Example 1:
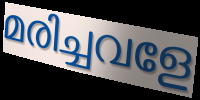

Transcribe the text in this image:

മരിച്ചവളേ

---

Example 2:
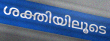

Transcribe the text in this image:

ശക്തിയിലൂടെ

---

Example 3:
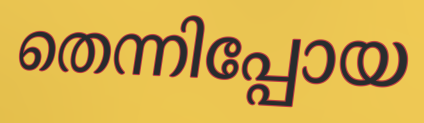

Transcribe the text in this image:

തെന്നിപ്പോയ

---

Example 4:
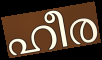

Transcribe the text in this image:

ഹീര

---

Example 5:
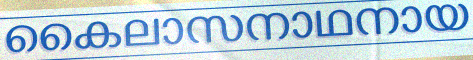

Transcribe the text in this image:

കൈലാസനാഥനായ